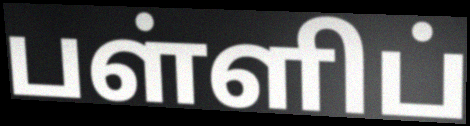
பள்ளிப்